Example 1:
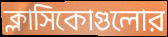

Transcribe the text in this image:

ক্লাসিকোগুলোর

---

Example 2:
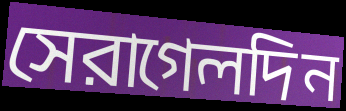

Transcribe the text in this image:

সেরাগেলদিন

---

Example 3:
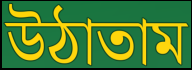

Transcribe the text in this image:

উঠাতাম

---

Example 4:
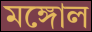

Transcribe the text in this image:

মঙ্গোল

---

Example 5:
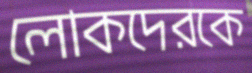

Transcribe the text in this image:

লোকদেরকে